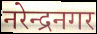
नरेन्द्रनगर